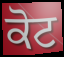
ਕੋਟ